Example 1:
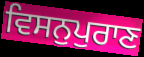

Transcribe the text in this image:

ਵਿਸਨੁਪੁਰਾਣ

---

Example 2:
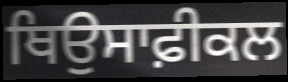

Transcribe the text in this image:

ਥਿਉਸਾਫ਼ੀਕਲ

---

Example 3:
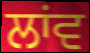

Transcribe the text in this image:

ਲਾਂਵ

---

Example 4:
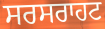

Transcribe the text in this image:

ਸਰਸਰਾਹਟ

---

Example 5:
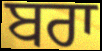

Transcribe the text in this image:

ਬਰਾ